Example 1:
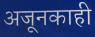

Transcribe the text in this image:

अजूनकाही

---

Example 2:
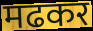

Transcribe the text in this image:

मढकर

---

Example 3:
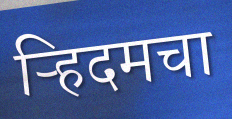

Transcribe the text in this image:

ऱ्हिदमचा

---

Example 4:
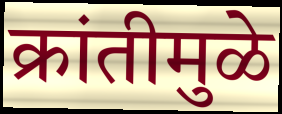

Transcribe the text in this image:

क्रांतीमुळे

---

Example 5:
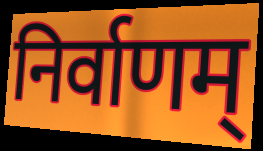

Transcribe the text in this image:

निर्वाणम्